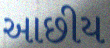
આછીય